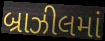
બ્રાઝીલમાં